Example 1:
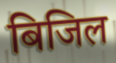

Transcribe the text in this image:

बिजिल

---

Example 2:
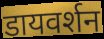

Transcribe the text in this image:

डायवर्शन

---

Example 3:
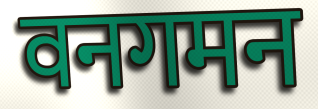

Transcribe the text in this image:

वनगमन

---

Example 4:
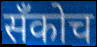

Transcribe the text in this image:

सँकोच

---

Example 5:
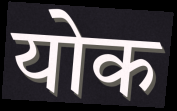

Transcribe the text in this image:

योक